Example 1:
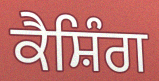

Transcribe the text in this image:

ਕੈਸ਼ਿੰਗ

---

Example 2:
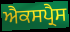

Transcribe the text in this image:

ਐਕਸਪ੍ਰੈਸ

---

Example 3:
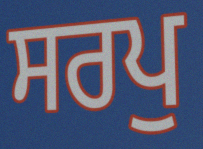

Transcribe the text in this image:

ਸਰਪੁ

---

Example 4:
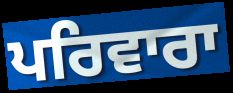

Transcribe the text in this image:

ਪਰਿਵਾਰਾ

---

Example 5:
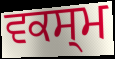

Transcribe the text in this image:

ਵਕਸ੍ਮ